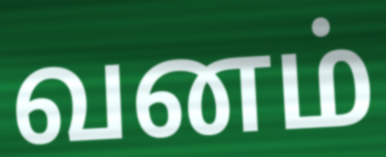
வனம்